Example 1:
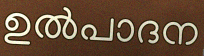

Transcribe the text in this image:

ഉൽപാദന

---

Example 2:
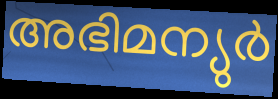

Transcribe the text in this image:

അഭിമന്യുർ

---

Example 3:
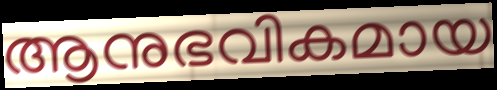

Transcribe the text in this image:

ആനുഭവികമായ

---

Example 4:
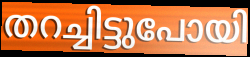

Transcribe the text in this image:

തറച്ചിട്ടുപോയി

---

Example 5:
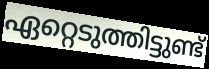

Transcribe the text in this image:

ഏറ്റെടുത്തിട്ടുണ്ട്